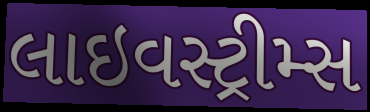
લાઇવસ્ટ્રીમ્સ